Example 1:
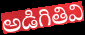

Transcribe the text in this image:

అడిగితివి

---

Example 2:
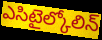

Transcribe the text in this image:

ఎసిటైల్కోలిన్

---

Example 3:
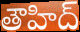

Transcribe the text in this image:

తౌహిద్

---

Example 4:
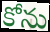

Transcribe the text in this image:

కోను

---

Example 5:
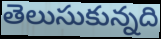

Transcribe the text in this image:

తెలుసుకున్నది